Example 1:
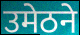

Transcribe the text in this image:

उमेठने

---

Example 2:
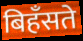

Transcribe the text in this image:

बिहँसते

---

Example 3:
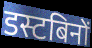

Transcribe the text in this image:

डस्टबिनों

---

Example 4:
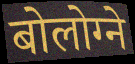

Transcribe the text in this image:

बोलोग्ने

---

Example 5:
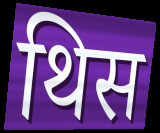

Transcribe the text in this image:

थिस